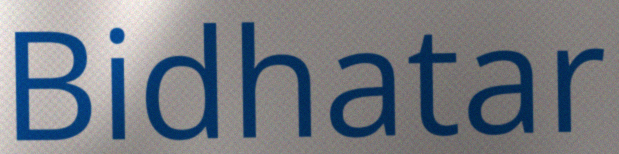
Bidhatar